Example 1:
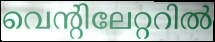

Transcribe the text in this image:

വെന്റിലേറ്ററിൽ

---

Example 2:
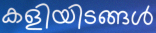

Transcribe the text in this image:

കളിയിടങ്ങൾ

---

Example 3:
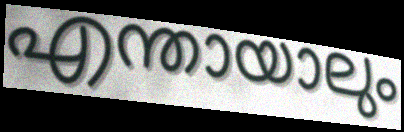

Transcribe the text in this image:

എന്തായാലും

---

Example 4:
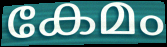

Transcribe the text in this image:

കേമം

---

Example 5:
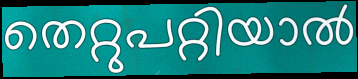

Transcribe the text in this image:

തെറ്റുപറ്റിയാൽ